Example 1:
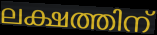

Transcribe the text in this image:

ലക്ഷത്തിന്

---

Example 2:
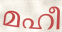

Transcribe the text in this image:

മഹീ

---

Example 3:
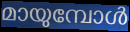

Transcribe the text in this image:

മായുമ്പോൾ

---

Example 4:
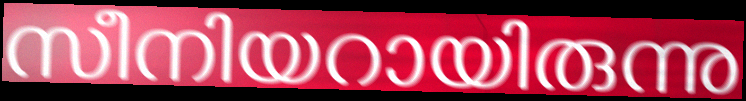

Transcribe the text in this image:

സീനിയറായിരുന്നു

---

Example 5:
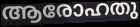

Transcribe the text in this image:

ആരോഹതു